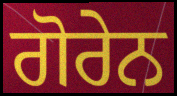
ਗੋਰੇਨ